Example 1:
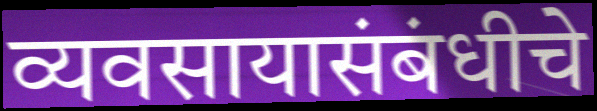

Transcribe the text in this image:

व्यवसायासंबंधीचे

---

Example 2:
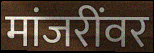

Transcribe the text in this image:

मांजरींवर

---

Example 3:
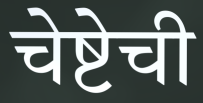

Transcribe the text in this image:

चेष्टेची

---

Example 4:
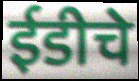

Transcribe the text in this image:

ईडीचे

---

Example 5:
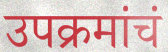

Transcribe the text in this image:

उपक्रमांचं